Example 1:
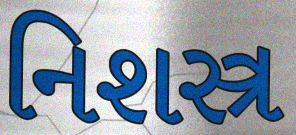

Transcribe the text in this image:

નિશસ્ત્ર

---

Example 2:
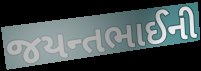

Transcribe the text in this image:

જયન્તભાઈની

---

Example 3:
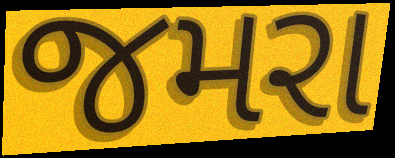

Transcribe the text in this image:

જમરા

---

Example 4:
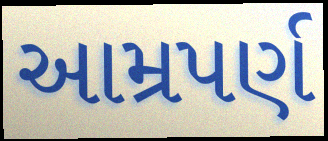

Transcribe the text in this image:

આમ્રપર્ણ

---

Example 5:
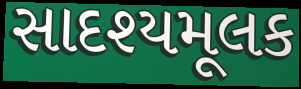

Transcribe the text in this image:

સાદશ્યમૂલક